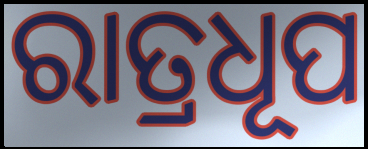
ରାତ୍ରଧୂପ